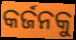
କର୍ଜନକୁ